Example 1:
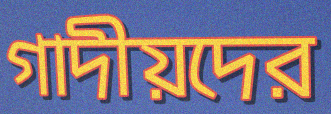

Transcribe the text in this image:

গাদীয়দের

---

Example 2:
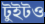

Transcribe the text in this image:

টুইটও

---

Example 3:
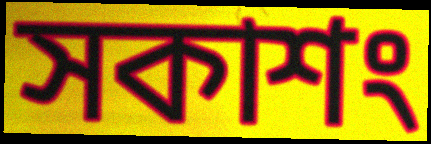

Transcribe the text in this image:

সকাশং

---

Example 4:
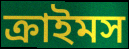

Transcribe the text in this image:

ক্রাইমস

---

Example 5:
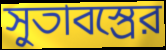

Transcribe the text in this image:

সুতাবস্ত্রের